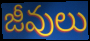
జీవులు